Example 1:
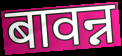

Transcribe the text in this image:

बावन्न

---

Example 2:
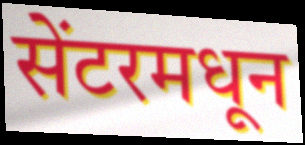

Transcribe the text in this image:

सेंटरमधून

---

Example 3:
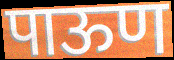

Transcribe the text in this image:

पाऊण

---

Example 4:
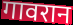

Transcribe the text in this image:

गावरान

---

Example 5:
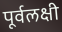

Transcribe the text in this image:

पूर्वलक्षी